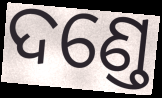
ଦଣ୍ଡେ